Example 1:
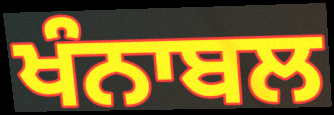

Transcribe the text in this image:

ਖੰਨਾਬਲ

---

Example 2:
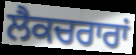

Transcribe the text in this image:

ਲੈਕਚਰਾਰਾਂ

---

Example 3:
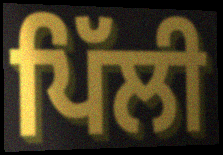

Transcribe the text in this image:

ਪਿੱਲੀ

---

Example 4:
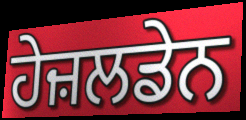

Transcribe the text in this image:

ਹੇਜ਼ਲਡੇਨ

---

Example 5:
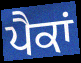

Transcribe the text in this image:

ਪੈਕਾਂ